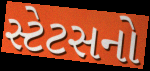
સ્ટેટસનો